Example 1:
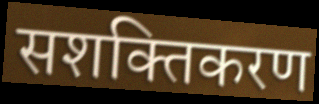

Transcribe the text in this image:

सशक्‍तिकरण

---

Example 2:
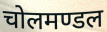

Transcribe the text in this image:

चोलमण्डल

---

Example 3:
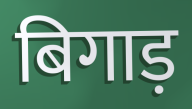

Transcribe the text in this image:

बिगाड़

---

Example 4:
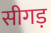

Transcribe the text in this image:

सीगड़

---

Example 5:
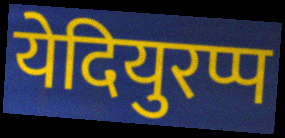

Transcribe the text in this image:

येदियुरप्प